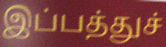
இப்பத்துச்